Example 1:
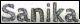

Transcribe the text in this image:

Sanika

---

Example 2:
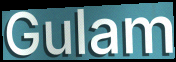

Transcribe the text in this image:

Gulam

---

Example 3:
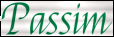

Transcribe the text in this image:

Passim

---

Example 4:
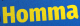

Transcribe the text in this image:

Homma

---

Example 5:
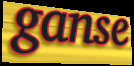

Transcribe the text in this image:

ganse